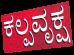
ಕಲ್ಪವೃಕ್ಷ